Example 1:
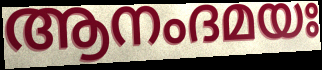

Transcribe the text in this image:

ആനംദമയഃ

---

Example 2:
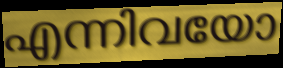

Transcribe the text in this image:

എന്നിവയോ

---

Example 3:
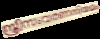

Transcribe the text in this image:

സ്ത്രീസംവരണനിയമം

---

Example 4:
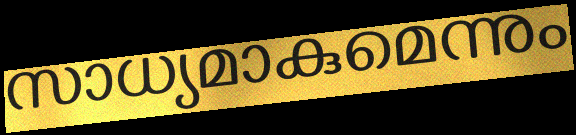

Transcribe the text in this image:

സാധ്യമാകുമെന്നും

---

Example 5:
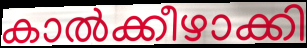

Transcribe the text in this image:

കാൽക്കീഴാക്കി